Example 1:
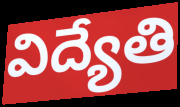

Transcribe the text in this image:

విద్యేతి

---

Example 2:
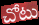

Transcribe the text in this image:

చోటు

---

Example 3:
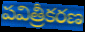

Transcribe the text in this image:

పవిత్రీకరణ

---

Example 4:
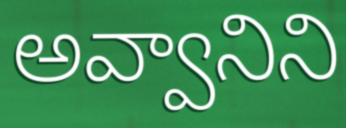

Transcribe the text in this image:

అవ్వానిని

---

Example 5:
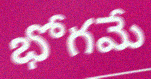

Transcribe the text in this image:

భోగమే